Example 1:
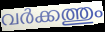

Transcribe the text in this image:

വർക്കത്തും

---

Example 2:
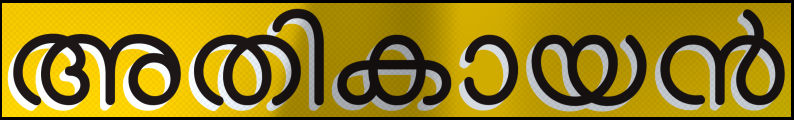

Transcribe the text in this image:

അതികായൻ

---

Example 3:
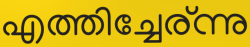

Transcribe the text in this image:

എത്തിച്ചേര്ന്നു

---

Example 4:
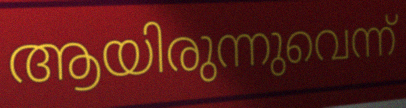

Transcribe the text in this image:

ആയിരുന്നുവെന്ന്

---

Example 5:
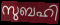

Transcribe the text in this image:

സുബഹി